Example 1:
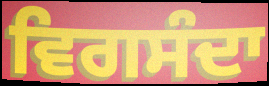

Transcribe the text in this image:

ਵਿਗਸੰਦਾ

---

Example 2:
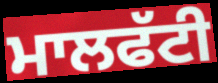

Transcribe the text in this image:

ਮਾਲਫੱਟੀ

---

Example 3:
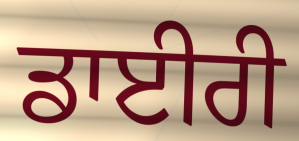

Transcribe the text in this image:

ਡਾਈਰੀ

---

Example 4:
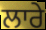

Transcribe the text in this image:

ਲਾਰੇ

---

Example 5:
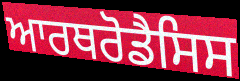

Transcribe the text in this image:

ਆਰਥਰੋਡੈਸਿਸ